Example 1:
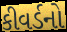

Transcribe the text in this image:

કીવર્ડનો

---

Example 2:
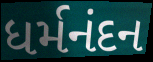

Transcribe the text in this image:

ધર્મનંદન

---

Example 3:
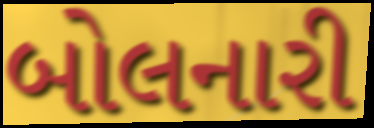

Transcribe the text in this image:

બોલનારી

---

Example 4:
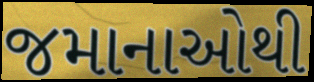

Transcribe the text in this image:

જમાનાઓથી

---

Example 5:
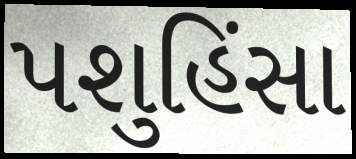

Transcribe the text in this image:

પશુહિંસા